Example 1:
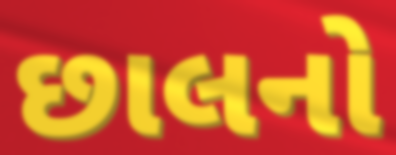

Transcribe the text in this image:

છાલનો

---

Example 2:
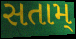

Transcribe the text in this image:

સતામ્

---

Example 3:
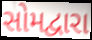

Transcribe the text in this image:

સોમદ્વારા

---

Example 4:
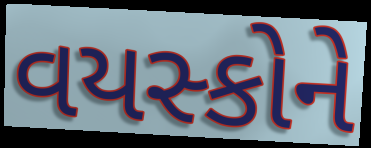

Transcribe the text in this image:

વયસ્કોને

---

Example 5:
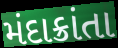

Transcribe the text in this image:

મંદાક્રાંતા